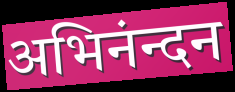
अभिनंन्दन